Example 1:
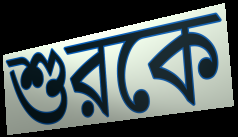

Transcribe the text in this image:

শুরকে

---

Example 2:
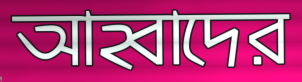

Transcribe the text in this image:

আহ্বাদের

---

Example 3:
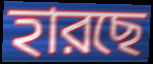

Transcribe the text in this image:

হারছে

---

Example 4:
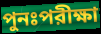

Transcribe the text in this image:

পুনঃপরীক্ষা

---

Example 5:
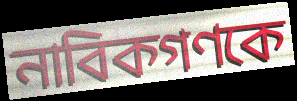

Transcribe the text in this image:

নাবিকগণকে